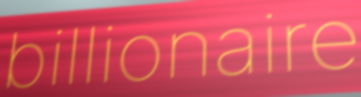
billionaire